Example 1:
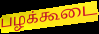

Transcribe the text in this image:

பழக்கூடை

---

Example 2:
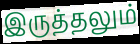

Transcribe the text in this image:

இருத்தலும்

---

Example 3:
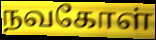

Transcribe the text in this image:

நவகோள்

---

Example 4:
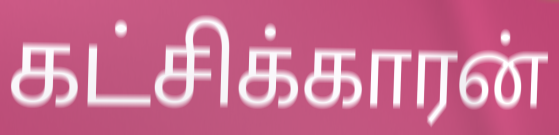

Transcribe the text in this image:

கட்சிக்காரன்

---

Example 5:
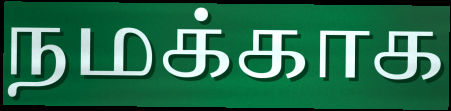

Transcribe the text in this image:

நமக்காக